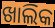
ଖାଲିକ